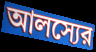
আলস্যের